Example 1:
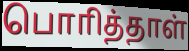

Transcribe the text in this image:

பொரித்தாள்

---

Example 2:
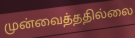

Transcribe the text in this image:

முன்வைத்ததில்லை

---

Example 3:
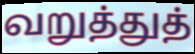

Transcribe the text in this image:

வறுத்துத்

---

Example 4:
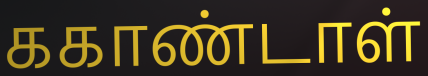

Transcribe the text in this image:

ககாண்டாள்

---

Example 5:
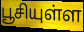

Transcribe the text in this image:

பூசியுள்ள